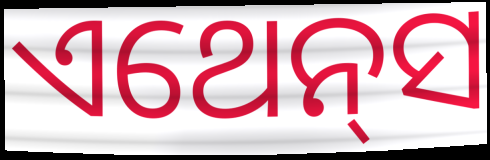
ଏଥେନ୍‌ସ